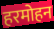
हरमोहन